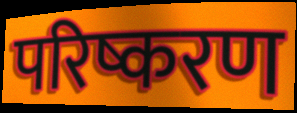
परिष्करण